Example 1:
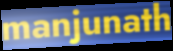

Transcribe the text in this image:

manjunath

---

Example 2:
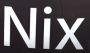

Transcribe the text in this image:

Nix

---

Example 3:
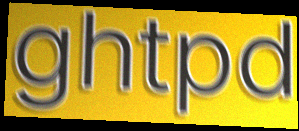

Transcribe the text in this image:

ghtpd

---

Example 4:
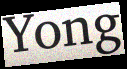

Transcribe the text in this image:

Yong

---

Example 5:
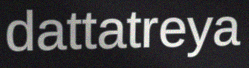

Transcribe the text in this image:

dattatreya